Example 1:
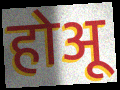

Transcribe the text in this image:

होअू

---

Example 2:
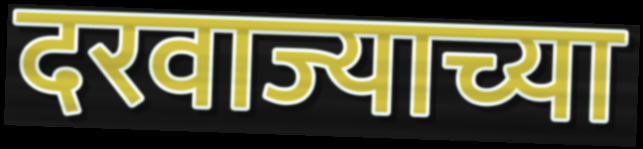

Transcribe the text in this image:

दरवाज्याच्या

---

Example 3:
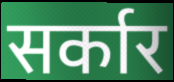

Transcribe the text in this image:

सर्कार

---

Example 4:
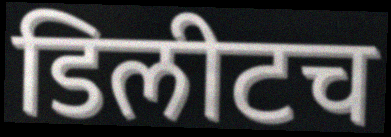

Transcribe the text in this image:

डिलीटच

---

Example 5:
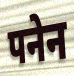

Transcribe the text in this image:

पनेन